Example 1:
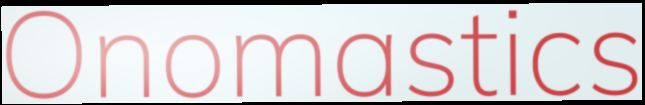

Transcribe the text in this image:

Onomastics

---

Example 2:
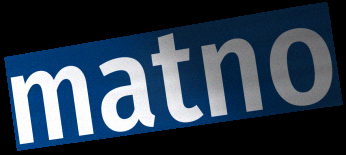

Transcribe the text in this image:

matno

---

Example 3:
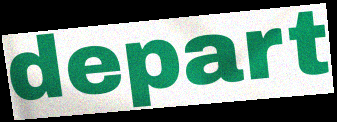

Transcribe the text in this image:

depart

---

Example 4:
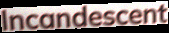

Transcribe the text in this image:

Incandescent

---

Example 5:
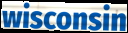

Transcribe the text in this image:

wisconsin